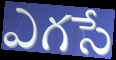
ఎగసే